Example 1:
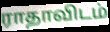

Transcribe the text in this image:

ராதாவிடம்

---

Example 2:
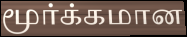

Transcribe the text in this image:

மூர்க்கமான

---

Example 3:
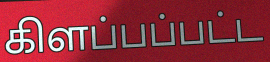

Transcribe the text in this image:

கிளப்பப்பட்ட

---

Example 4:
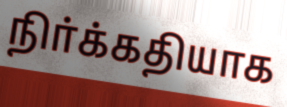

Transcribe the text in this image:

நிர்க்கதியாக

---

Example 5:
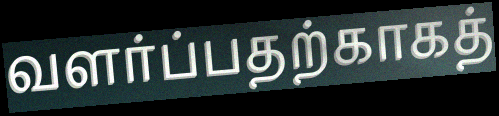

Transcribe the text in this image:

வளர்ப்பதற்காகத்